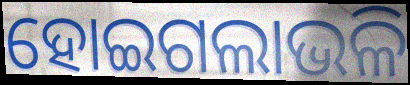
ହୋଇଗଲାଭଳି